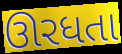
ઊરધતા